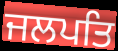
ਜਲਪਤਿ